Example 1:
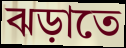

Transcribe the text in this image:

ঝড়াতে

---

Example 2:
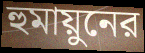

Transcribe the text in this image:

হুমায়ুনের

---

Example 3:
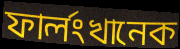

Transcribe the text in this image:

ফার্লংখানেক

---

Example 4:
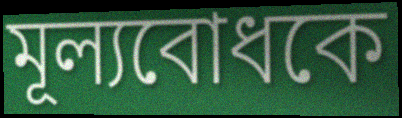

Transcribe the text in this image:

মূল্যবোধকে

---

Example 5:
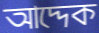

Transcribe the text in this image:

আদ্দেক